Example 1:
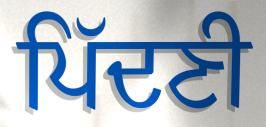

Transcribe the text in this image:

ਪਿੱਦਣੀ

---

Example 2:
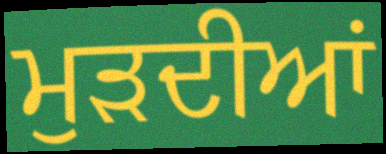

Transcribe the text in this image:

ਮੁੜਦੀਆਂ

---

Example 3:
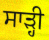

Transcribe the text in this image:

ਸਾੜ੍ਹੀ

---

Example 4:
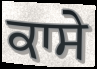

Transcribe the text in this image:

ਕਾਸੇ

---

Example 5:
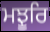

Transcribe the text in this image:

ਮਝੂਰਿ